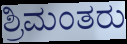
ಶ್ರಿಮಂತರು